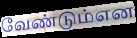
வேண்டும்என